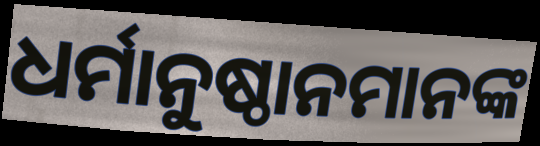
ଧର୍ମାନୁଷ୍ଠାନମାନଙ୍କ